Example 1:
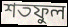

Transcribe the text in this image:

শতফুল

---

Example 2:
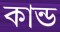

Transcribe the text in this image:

কান্ড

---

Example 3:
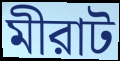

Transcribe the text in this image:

মীরাট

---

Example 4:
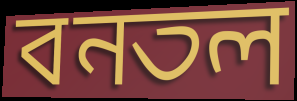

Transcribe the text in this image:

বনতল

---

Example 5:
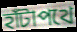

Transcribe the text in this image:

হাঁটাপথে